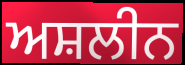
ਅਸ਼ਲੀਨ